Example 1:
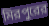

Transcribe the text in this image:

মিরপুরের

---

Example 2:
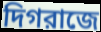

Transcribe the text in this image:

দিগরাজে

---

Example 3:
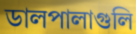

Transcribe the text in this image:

ডালপালাগুলি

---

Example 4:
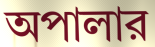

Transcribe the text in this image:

অপালার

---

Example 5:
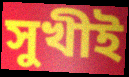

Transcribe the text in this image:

সুখীই